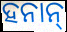
ହନାନ୍